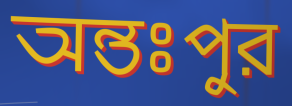
অন্তঃপুর